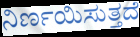
ನಿರ್ಣಯಿಸುತ್ತದೆ